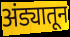
अंड्यातून